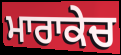
ਮਾਰਾਕੇਚ